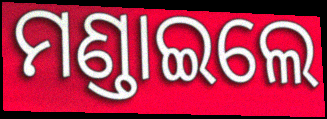
ମଣ୍ଡାଇଲେ